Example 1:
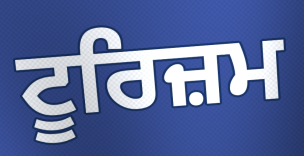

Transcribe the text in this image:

ਟੂਰਿਜ਼ਮ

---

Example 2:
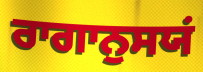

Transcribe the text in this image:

ਰਾਗਾਨੁਸਯਂ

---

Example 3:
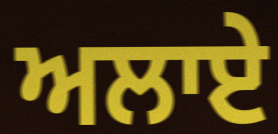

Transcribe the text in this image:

ਅਲਾਏ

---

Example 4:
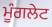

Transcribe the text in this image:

ਮੂੰਗਲੇਟ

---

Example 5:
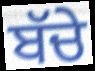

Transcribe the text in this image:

ਬੱਚੇ